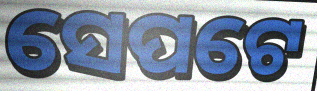
ସେପଟେ